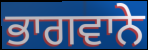
ਭਾਗਵਾਨੇ